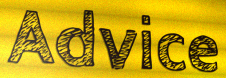
Advice